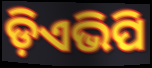
ଡ଼ିଏଭିପି